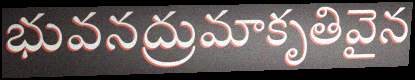
భువనద్రుమాకృతివైన